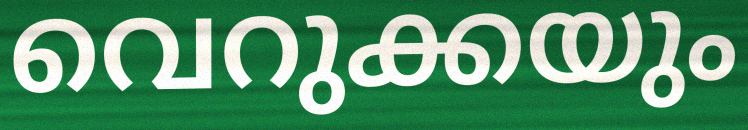
വെറുക്കയും